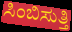
ಸಿಂಬಿಸುತ್ತಿ